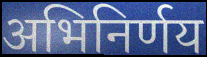
अभिनिर्णय